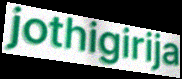
jothigirija